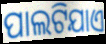
ପାଲଟିଯାଏ